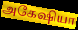
அகேஷியா